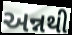
અન્નથી